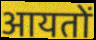
आयतों